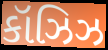
કૉઝિઝ